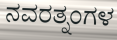
ನವರತ್ನಂಗಳ